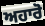
ਅਹਾਰੋ